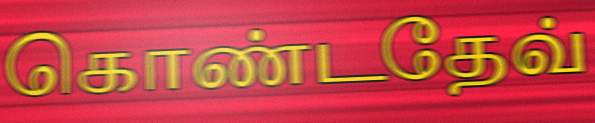
கொண்டதேவ்